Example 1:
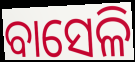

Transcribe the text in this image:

ବାସେଳି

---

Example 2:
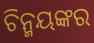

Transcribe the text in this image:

ଚିନ୍ମୟଙ୍କର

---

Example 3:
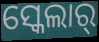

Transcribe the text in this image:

ସ୍କେଲାର୍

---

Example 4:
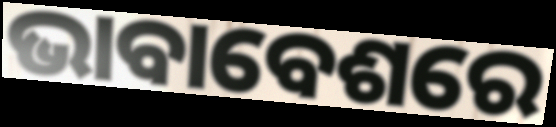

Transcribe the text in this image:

ଭାବାବେଶରେ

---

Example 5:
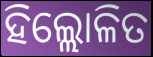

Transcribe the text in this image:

ହିଲ୍ଲୋଳିତ